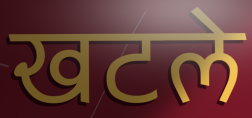
खटले